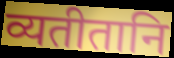
व्यतीतानि